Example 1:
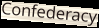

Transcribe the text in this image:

Confederacy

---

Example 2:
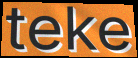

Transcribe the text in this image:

teke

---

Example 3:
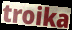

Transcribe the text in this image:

troika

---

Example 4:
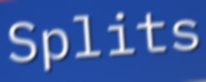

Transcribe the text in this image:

Splits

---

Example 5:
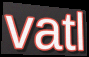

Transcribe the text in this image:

vatl